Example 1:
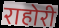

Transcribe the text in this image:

राहोरी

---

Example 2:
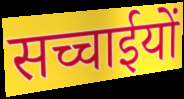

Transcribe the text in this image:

सच्चाईयों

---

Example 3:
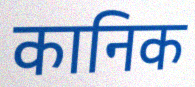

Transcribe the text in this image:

कानिक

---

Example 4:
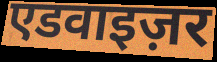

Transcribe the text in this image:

एडवाइज़र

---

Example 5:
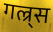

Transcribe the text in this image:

गल्र्स